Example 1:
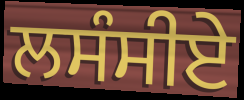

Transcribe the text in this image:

ਲਸੰਸੀਏ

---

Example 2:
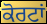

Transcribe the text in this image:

ਕੋਰਟਾਂ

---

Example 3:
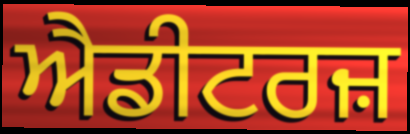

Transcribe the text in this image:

ਐਡੀਟਰਜ਼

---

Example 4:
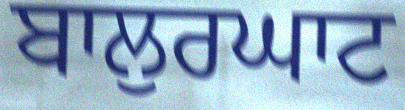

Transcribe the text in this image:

ਬਾਲੁਰਘਾਟ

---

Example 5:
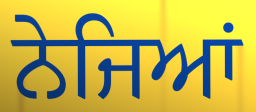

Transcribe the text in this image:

ਨੇਜਿਆਂ